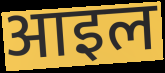
आइल